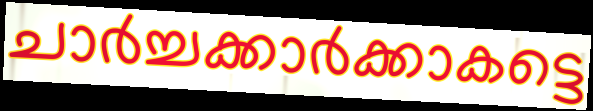
ചാർച്ചക്കാർക്കാകട്ടെ